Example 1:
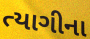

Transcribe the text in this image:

ત્યાગીના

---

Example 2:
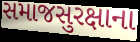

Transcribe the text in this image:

સમાજસુરક્ષાના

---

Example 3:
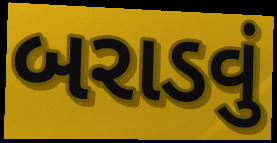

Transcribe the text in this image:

બરાડવું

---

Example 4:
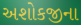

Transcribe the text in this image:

અશોકજીના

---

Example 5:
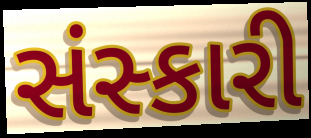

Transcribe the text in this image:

સંસ્કારી